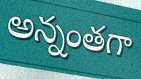
అన్నంతగా